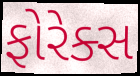
ફોરેક્સ